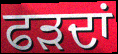
ਫੜਦਾਂ